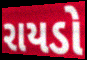
રાયડો